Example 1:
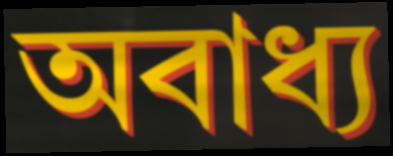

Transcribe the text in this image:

অবাধ্য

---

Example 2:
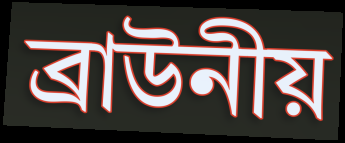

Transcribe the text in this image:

ব্ৰাউনীয়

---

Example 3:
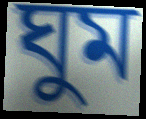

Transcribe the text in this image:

ঘুম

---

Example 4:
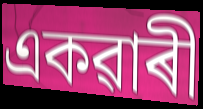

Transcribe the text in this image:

একৱাৰী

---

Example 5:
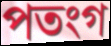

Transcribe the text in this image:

পতংগ